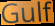
Gulf